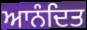
ਆਨੰਦਿਤ